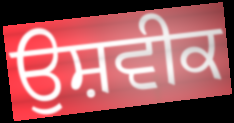
ਉਸ਼ਵੀਕ